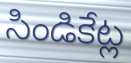
సిండికేట్ల